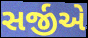
સર્જીએ